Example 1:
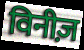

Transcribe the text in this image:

विनीज़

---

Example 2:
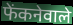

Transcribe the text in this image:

फेंकनेवाले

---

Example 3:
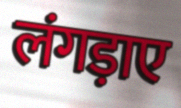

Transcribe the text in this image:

लंगड़ाए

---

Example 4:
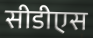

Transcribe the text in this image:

सीडीएस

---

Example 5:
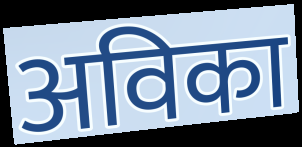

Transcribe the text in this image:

अविका